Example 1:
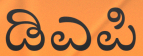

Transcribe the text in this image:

ಡಿಎಪಿ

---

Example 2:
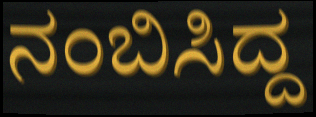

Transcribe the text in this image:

ನಂಬಿಸಿದ್ದ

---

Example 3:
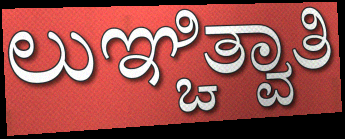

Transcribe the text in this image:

ಲುಞ್ಚಿತ್ವಾತಿ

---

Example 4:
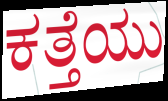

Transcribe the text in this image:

ಕತ್ತೆಯು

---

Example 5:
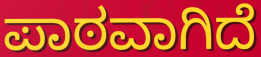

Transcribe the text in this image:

ಪಾಠವಾಗಿದೆ